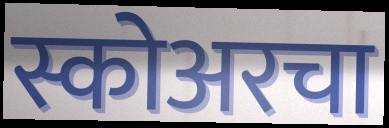
स्कोअरचा